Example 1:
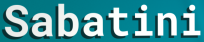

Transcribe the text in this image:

Sabatini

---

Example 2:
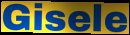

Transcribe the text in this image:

Gisele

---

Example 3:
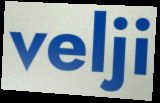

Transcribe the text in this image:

velji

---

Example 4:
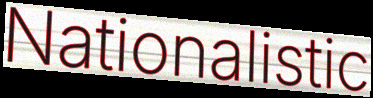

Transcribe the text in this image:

Nationalistic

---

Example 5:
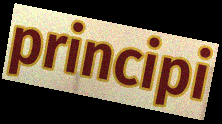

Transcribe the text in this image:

principi